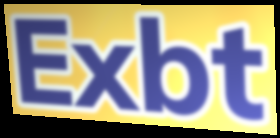
Exbt